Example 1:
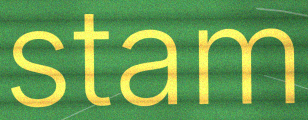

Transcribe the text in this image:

stam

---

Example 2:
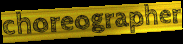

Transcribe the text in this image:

choreographer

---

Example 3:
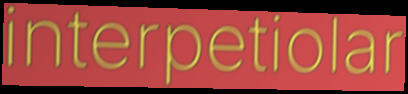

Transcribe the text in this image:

interpetiolar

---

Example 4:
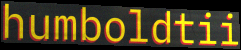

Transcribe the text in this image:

humboldtii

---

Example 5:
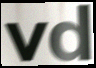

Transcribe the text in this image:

vd